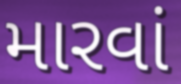
મારવાં